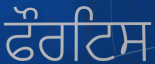
ਫੌਰਟਿਸ